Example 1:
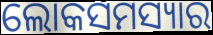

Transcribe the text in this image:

ଲୋକସମସ୍ୟାର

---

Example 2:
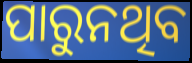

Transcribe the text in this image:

ପାରୁନଥିବ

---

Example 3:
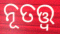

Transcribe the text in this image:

ନୂତତ୍ତ୍ଵ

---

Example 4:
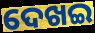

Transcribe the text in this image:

ଦେଖଇ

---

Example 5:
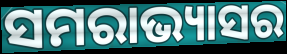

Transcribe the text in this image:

ସମରାଭ୍ୟାସର